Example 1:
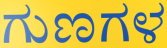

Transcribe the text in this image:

ಗುಣಗಳ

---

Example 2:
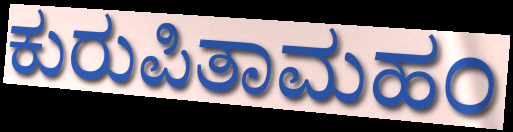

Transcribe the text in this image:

ಕುರುಪಿತಾಮಹಂ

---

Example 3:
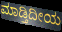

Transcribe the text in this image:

ಮಾಡ್ತಿದೀಯ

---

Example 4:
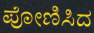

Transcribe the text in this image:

ಪೋಣಿಸಿದ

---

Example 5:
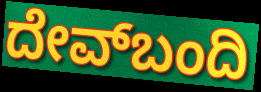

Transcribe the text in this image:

ದೇವ್‌ಬಂದಿ